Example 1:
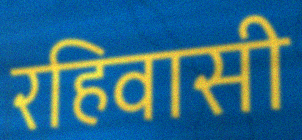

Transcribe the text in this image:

रहिवासी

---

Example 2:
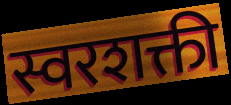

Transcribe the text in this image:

स्वरशक्ती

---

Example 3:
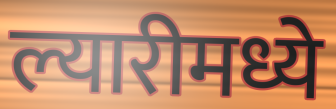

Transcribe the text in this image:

ल्यारीमध्ये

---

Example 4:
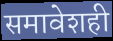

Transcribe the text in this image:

समावेशही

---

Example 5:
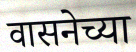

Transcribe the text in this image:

वासनेच्या